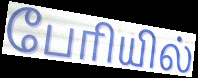
பேரியில்